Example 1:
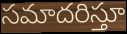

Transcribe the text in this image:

సమాదరిస్తూ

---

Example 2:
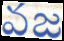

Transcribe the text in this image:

వజ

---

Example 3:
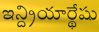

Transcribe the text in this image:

ఇన్ద్రియార్థేషు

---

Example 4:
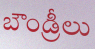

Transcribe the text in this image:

బౌండ్రీలు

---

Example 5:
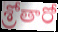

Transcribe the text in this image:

శ్రోతారో